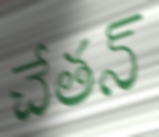
చేతన్